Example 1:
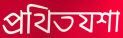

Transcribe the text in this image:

প্রথিতযশা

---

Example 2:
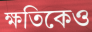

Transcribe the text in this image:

ক্ষতিকেও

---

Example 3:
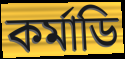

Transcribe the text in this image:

কর্মাডি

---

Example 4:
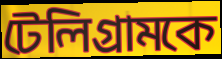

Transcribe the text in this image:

টেলিগ্রামকে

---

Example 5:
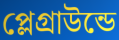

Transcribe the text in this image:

প্লেগ্রাউন্ডে